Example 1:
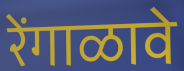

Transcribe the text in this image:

रेंगाळावे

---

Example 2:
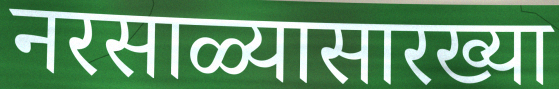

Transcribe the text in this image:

नरसाळ्यासारख्या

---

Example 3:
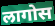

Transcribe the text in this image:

लागोस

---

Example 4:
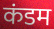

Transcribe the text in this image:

कंडम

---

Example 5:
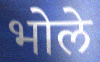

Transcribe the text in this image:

भोले